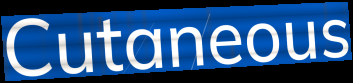
Cutaneous